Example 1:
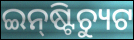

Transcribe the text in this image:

ଇନ୍‍ଷ୍ଟିଚ୍ୟୁଟ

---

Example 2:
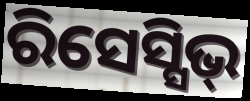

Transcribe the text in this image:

ରିସେସ୍ସିଭ୍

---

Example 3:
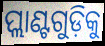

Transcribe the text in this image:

ପ୍ଲାଣ୍ଟଗୁଡ଼ିକୁ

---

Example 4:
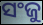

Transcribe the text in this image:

ସଂଜୁ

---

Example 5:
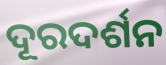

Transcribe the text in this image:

ଦୂରଦର୍ଶନ